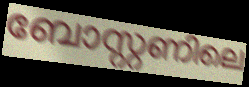
ബോസ്റ്റണിലെ